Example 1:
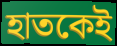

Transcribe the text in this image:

হাতকেই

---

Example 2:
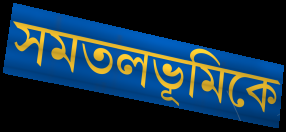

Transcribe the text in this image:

সমতলভূমিকে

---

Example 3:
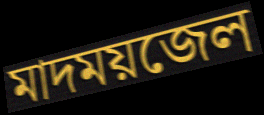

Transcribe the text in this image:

মাদময়জেল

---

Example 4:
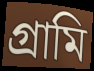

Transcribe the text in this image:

গ্রামি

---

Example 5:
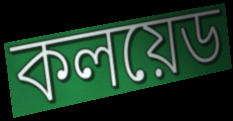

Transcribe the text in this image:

কলয়েড